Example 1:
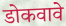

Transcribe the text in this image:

डोकवावे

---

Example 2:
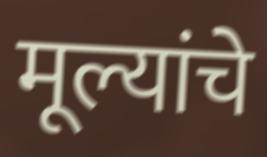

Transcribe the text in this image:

मूल्यांचे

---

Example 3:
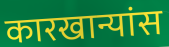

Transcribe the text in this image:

कारखान्यांस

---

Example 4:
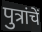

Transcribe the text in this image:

पुत्रांचें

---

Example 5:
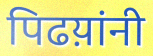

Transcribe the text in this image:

पिढय़ांनी